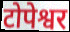
टोपेश्वर